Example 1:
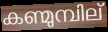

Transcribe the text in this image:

കണ്മുമ്പില്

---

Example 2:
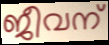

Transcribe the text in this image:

ജീവന്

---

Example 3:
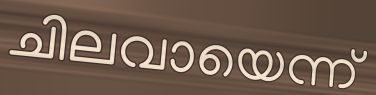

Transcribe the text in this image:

ചിലവായെന്ന്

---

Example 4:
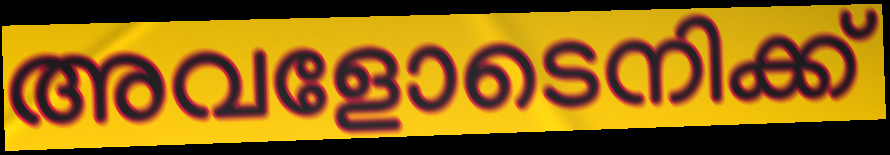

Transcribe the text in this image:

അവളോടെനിക്ക്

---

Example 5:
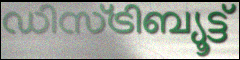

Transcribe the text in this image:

ഡിസ്ട്രിബ്യൂട്ട്